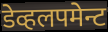
डेव्हलपमेन्ट